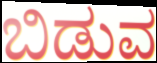
ಬಿಡುವ